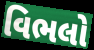
વિભલો